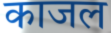
काजल